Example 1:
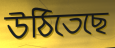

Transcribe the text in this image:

উঠিতেছে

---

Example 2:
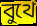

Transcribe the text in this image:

বুথে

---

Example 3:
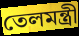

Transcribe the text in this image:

তেলমন্ত্রী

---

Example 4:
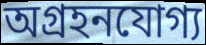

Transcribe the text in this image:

অগ্রহনযোগ্য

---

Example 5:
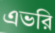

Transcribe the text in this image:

এভরি